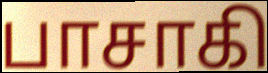
பாசாகி